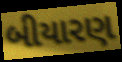
બીયારણ